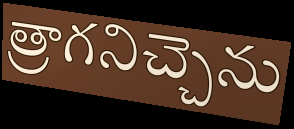
త్రాగనిచ్చెను